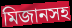
মিজানসহ